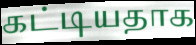
கட்டியதாக